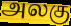
அலகு